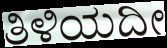
ತಿಳಿಯದೀ